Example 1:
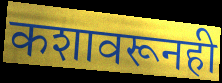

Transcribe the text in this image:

कशावरूनही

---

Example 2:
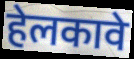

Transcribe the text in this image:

हेलकावे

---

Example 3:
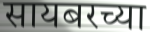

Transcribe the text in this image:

सायबरच्या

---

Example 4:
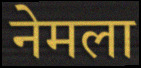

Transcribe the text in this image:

नेमला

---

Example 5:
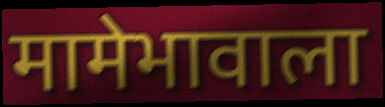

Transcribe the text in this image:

मामेभावाला